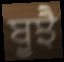
ਬੂਝੈ